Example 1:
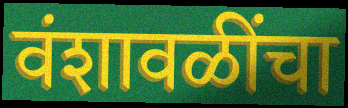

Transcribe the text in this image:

वंशावळींचा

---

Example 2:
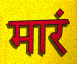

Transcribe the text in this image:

मारं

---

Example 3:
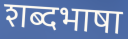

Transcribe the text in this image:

शब्दभाषा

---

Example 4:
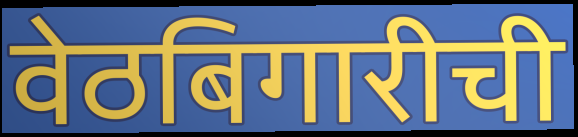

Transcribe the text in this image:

वेठबिगारीची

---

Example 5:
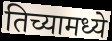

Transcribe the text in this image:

तिच्यामध्ये